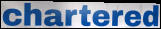
chartered